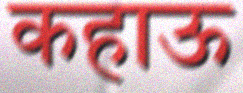
कहाऊ